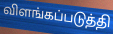
விளங்கப்படுத்தி